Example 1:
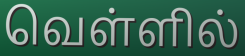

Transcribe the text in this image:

வெள்ளில்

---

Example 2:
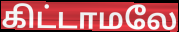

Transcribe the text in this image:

கிட்டாமலே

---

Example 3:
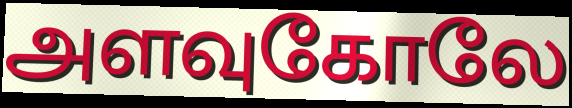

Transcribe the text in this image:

அளவுகோலே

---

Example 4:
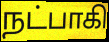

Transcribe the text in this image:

நட்பாகி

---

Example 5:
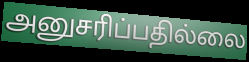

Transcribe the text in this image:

அனுசரிப்பதில்லை